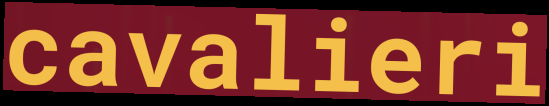
cavalieri